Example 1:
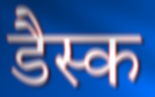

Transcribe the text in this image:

डैस्क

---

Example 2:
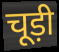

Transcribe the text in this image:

चूड़ी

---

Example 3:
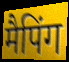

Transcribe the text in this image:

मैपिंग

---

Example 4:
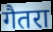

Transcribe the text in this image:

गैतरा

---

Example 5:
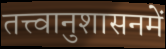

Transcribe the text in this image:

तत्त्वानुशासनमें